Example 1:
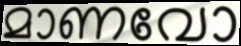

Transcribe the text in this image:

മാണവോ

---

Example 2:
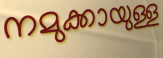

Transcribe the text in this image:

നമുക്കായുള്ള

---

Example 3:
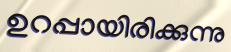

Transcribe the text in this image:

ഉറപ്പായിരിക്കുന്നു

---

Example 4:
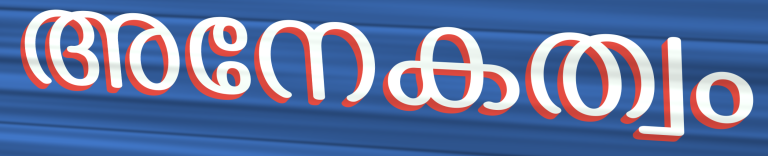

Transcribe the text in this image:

അനേകത്വം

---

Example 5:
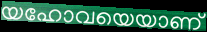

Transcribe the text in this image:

യഹോവയെയാണ്